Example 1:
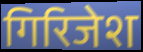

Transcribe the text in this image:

गिरिजेश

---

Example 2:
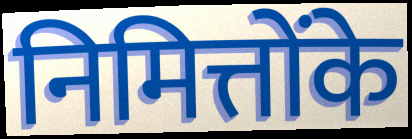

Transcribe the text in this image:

निमित्तोंके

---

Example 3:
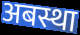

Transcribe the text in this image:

अबस्था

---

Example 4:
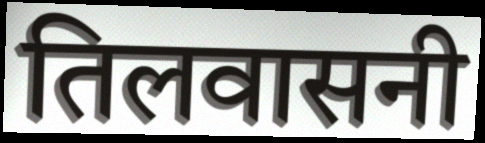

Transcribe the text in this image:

तिलवासनी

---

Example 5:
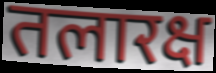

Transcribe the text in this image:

तलारक्ष